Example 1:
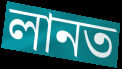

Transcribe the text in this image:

লানত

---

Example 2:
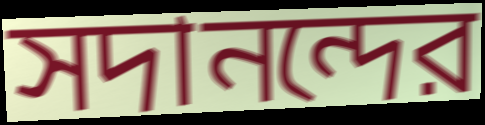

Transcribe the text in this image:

সদানন্দের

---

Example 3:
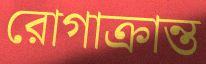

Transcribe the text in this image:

রোগাক্রান্ত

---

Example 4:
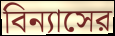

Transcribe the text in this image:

বিন্যাসের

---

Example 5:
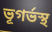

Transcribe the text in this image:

ভূগর্ভস্থ